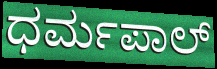
ಧರ್ಮಪಾಲ್